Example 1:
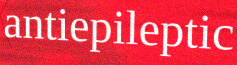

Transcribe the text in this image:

antiepileptic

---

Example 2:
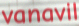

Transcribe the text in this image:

vanavil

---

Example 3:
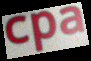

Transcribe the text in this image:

cpa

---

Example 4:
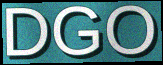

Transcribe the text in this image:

DGO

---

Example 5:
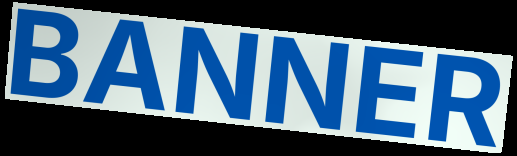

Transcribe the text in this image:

BANNER